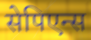
सेपिएन्स